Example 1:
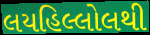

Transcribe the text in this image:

લયહિલ્લોલથી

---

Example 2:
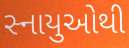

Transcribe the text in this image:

સ્નાયુઓથી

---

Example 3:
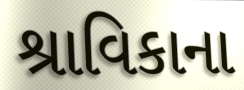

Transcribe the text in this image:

શ્રાવિકાના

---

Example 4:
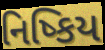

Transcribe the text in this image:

નિષ્કિય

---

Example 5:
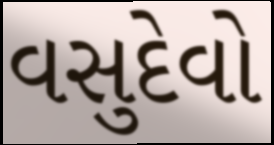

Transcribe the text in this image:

વસુદેવો